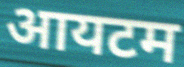
आयटम